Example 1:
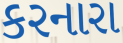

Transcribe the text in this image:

કરનારા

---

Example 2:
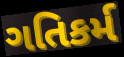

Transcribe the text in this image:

ગતિકર્મ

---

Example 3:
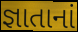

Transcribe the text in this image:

જ્ઞાતાનાં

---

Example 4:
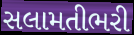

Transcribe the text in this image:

સલામતીભરી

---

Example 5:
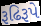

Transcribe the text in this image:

રૂઢિરૂપે